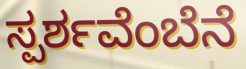
ಸ್ಪರ್ಶವೆಂಬೆನೆ